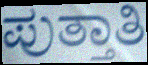
ಪುತ್ತಾತಿ